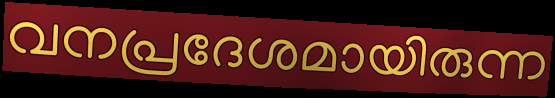
വനപ്രദേശമായിരുന്ന